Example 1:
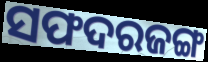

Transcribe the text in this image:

ସଫଦରଜଙ୍ଗ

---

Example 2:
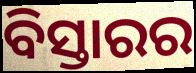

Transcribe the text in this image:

ବିସ୍ତାରର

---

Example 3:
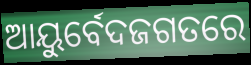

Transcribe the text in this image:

ଆୟୁର୍ବେଦଜଗତରେ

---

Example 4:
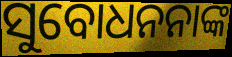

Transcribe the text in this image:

ସୁବୋଧନନାଙ୍କ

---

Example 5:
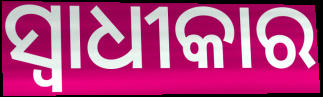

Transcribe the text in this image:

ସ୍ୱାଧୀକାର